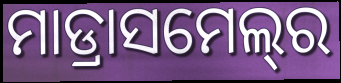
ମାଡ୍ରାସମେଲ୍‍ର